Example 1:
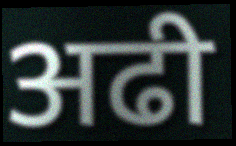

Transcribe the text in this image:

अढी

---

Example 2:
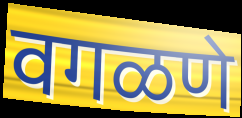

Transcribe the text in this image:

वगळणे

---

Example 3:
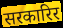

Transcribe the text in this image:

सरकारिर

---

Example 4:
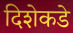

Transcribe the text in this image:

दिशेकडे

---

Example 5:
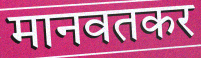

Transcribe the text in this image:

मानवतकर